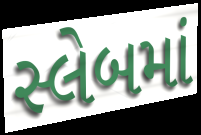
સ્લેબમાં